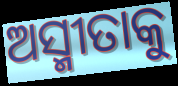
ଅସ୍ମୀତାକୁ